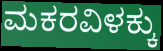
ಮಕರವಿಳಕ್ಕು